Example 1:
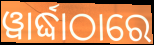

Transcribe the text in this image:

ୱାର୍ଦ୍ଧାଠାରେ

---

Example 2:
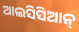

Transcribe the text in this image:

ଆଲସିସିଆନ୍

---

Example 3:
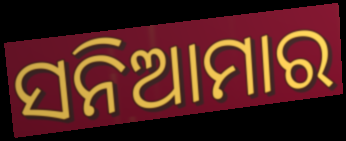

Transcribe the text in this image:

ସନିଆମାର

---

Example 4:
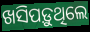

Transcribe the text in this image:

ଖସିପଡ଼ୁଥିଲେ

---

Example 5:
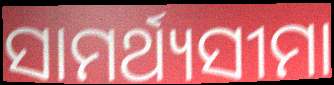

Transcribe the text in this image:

ସାମର୍ଥ୍ୟସୀମା